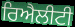
ਰਿਐਲੀਟੀ